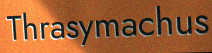
Thrasymachus